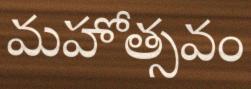
మహోత్సవం